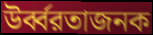
উর্ব্বরতাজনক